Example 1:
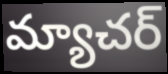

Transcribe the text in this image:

మ్యాచర్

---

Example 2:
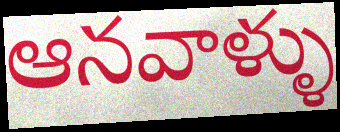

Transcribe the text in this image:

ఆనవాళ్ళు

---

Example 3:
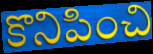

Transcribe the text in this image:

కొనిపించి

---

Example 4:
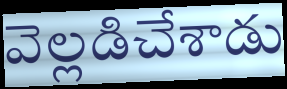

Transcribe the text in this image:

వెల్లడిచేశాడు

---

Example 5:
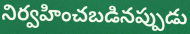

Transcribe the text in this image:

నిర్వహించబడినప్పుడు